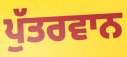
ਪੁੱਤਰਵਾਨ